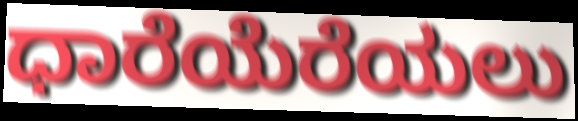
ಧಾರೆಯೆರೆಯಲು